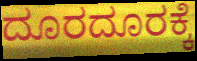
ದೂರದೂರಕ್ಕೆ